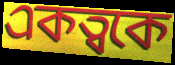
একত্বকে